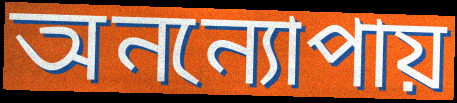
অনন্যোপায়